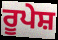
ਰੂਪੇਸ਼